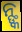
ନ୍ଙ୍କ